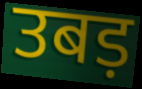
उबड़